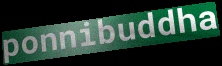
ponnibuddha